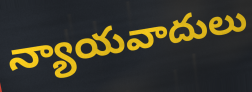
న్యాయవాదులు